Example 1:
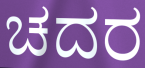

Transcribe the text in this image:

ಚದರ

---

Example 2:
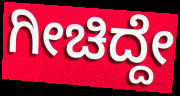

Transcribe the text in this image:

ಗೀಚಿದ್ದೇ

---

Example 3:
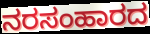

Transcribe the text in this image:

ನರಸಂಹಾರದ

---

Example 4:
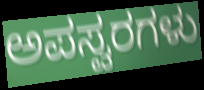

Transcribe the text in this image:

ಅಪಸ್ವರಗಳು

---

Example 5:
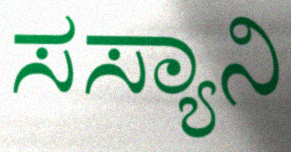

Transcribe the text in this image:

ಸಸ್ಯಾನಿ